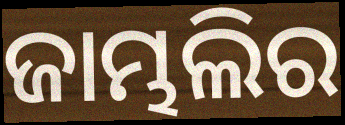
ଜାମ୍ଭଲିର